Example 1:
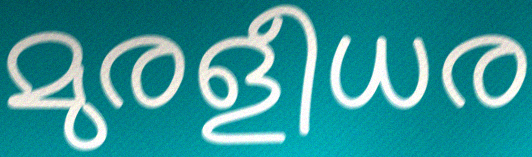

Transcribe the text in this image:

മുരളീധര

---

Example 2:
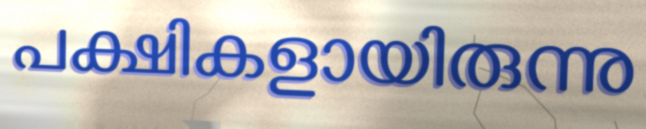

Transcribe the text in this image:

പക്ഷികളായിരുന്നു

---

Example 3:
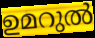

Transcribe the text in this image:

ഉമറുൽ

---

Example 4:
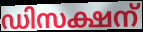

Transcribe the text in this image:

ഡിസക്ഷന്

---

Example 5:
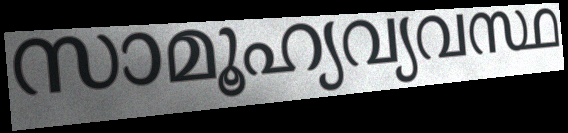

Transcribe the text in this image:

സാമൂഹ്യവ്യവസ്ഥ